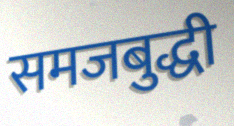
समजबुद्धी